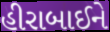
હીરાબાઈને